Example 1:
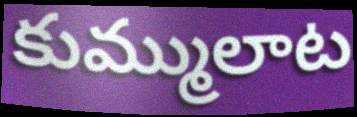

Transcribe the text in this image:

కుమ్ములాట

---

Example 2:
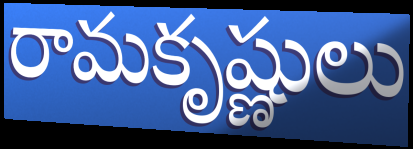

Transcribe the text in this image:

రామకృష్ణులు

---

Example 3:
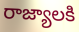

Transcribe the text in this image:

రాజ్యాలకి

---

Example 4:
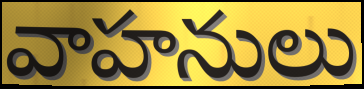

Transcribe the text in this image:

వాహనులు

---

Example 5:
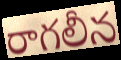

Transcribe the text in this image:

రాగలీన